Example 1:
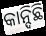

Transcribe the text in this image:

କାନ୍ଦିଛି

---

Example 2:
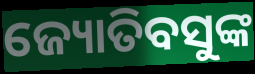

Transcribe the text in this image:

ଜ୍ୟୋତିବସୁଙ୍କ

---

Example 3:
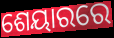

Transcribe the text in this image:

ଶେୟାରରେ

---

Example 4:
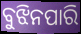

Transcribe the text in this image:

ବୁଝିନପାରି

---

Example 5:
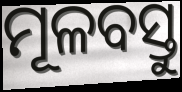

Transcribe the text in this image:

ମୂଳବସ୍ତୁ